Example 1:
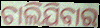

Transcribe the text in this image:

ଚାଲିଯିବାର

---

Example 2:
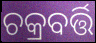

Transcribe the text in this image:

ଚକ୍ରବର୍ତ୍ତି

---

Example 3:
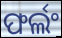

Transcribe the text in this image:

ଫର୍ଲଂ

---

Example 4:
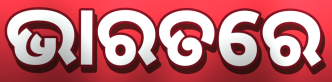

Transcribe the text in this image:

ଭାରତରେ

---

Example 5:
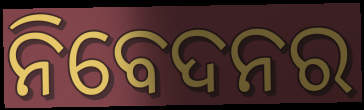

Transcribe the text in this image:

ନିବେଦନର